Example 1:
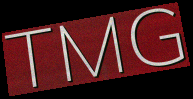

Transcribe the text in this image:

TMG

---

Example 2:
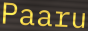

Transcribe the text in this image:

Paaru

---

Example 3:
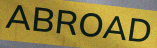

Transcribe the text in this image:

ABROAD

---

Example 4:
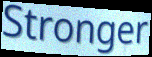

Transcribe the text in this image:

Stronger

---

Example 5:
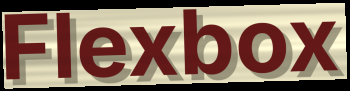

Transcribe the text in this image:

Flexbox